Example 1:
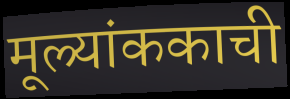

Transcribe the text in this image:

मूल्यांककाची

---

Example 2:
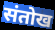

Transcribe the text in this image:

संतोख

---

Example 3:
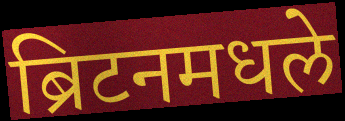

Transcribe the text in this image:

ब्रिटनमधले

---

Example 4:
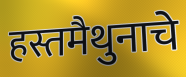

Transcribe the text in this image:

हस्तमैथुनाचे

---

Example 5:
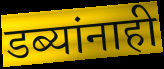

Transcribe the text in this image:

डब्यांनाही